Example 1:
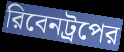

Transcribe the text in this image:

রিবেনট্রপের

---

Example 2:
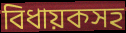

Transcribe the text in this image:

বিধায়কসহ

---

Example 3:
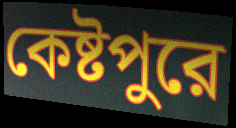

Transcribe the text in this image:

কেষ্টপুরে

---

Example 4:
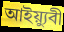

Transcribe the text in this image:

আইয়্যুবী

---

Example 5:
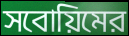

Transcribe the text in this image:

সবোয়িমের